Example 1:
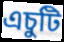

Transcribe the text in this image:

এচুটি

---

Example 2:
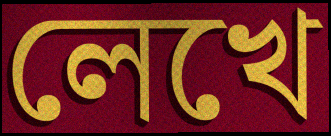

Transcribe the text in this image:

লেখে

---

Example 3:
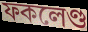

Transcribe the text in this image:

ফকলেণ্ড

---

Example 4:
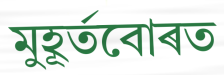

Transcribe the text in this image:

মুহূৰ্তবোৰত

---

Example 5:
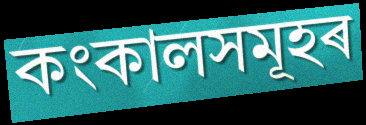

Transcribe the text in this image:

কংকালসমূহৰ